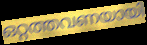
ഒറ്റത്തവണയായി